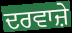
ਦਰਵਾਜ਼ੇ